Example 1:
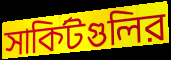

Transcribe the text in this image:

সার্কিটগুলির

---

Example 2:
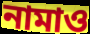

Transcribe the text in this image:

নামাও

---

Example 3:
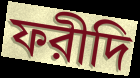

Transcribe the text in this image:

ফরীদি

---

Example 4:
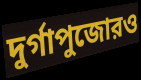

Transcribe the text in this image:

দুর্গাপুজোরও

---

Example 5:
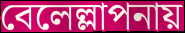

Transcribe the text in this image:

বেলেল্লাপনায়